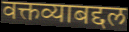
वक्तव्याबद्दल